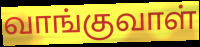
வாங்குவாள்